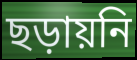
ছড়ায়নি